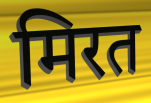
मिरत